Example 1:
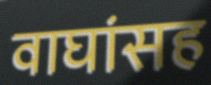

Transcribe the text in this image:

वाघांसह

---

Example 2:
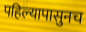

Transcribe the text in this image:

पहिल्यापासुनच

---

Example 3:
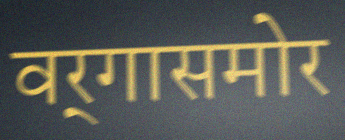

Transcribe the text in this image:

वर्गासमोर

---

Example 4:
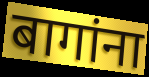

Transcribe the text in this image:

बागांना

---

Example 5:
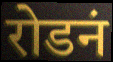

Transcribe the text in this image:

रोडनं